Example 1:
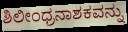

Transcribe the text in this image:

ಶಿಲೀಂಧ್ರನಾಶಕವನ್ನು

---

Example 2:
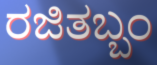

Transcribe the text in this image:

ರಜಿತಬ್ಬಂ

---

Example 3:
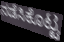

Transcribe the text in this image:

ನಡೆಸಿಕೊಟ್ಟ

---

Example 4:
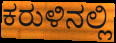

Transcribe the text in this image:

ಕರುಳಿನಲ್ಲಿ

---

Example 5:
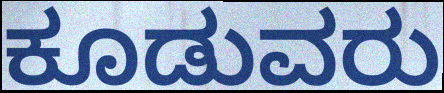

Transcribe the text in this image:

ಕೂಡುವರು